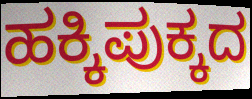
ಹಕ್ಕಿಪುಕ್ಕದ